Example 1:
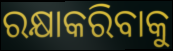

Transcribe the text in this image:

ରକ୍ଷାକରିବାକୁ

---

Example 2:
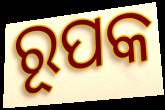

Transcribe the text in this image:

ରୂପକ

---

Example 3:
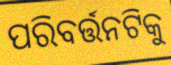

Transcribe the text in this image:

ପରିବର୍ତ୍ତନଟିକୁ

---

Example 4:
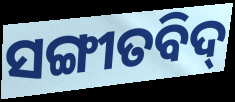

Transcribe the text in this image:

ସଙ୍ଗୀତବିଦ୍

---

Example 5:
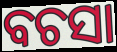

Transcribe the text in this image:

ବଚସା